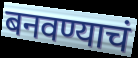
बनवण्याचं